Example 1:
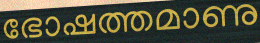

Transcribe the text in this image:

ഭോഷത്തമാണു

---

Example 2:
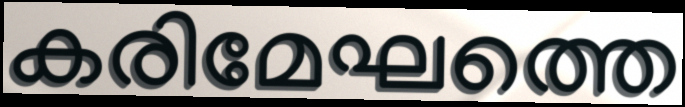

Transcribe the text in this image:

കരിമേഘത്തെ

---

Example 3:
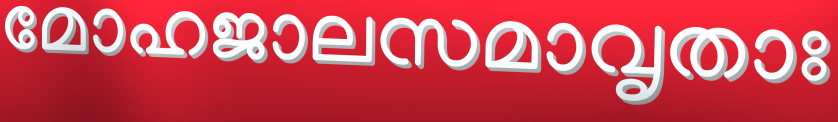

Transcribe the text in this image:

മോഹജാലസമാവൃതാഃ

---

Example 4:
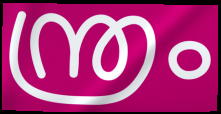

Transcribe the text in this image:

ന്ത്രം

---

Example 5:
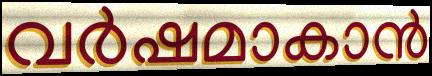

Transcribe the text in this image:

വർഷമാകാൻ